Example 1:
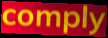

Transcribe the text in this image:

comply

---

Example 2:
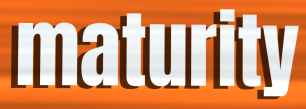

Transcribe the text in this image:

maturity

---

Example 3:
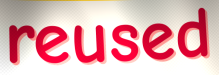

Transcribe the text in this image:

reused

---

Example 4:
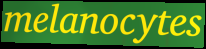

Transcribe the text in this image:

melanocytes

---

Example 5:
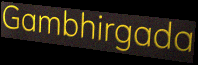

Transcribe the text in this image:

Gambhirgada